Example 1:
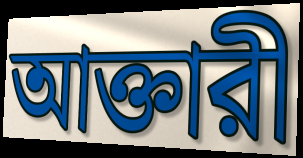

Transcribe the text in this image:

আক্তারী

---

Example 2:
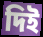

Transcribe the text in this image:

দিই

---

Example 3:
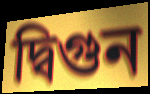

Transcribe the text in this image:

দ্বিগুন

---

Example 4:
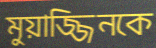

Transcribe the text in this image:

মুয়াজ্জিনকে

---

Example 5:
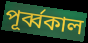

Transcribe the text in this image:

পূর্ব্বকাল